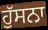
ਹੁੱਸਨਾ